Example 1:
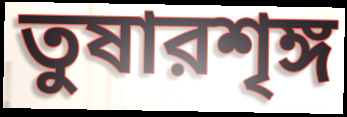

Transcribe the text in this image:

তুষারশৃঙ্গ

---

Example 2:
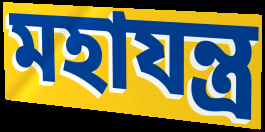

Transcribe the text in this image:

মহাযন্ত্র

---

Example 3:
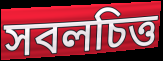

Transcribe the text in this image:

সবলচিত্ত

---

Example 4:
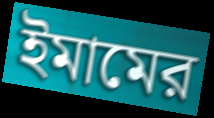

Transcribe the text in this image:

ইমামের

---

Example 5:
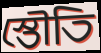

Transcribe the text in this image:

স্তৌতি